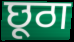
छूठा